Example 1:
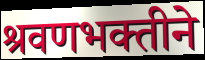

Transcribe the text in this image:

श्रवणभक्तीने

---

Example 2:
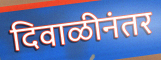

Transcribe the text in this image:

दिवाळीनंतर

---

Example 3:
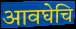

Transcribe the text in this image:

आवघेचि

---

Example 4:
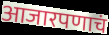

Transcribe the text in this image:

आजारपणाचं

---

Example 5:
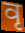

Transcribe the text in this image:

वृ